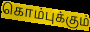
கொம்புக்கும்